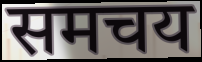
समचय